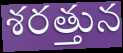
శరత్తున